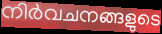
നിർവചനങ്ങളുടെ